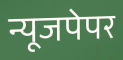
न्‍यूजपेपर